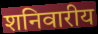
शनिवारीय